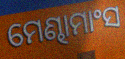
ମେଣ୍ଢାମାଂସ